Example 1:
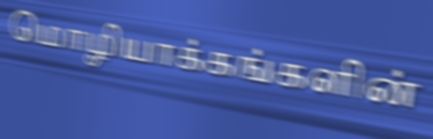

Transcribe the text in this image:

மொழியாக்கங்களின்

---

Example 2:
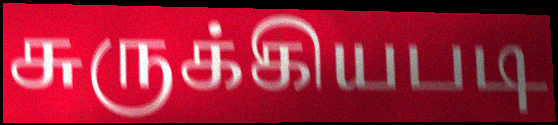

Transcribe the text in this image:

சுருக்கியபடி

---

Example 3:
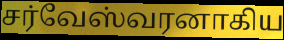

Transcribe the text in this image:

சர்வேஸ்வரனாகிய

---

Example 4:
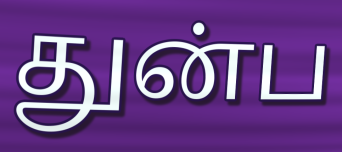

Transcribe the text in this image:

துன்ப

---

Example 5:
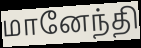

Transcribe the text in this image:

மானேந்தி